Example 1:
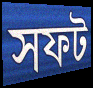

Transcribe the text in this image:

সফট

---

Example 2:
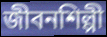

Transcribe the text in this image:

জীবনশিল্পী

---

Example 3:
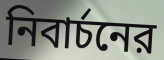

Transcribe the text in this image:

নিবার্চনের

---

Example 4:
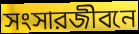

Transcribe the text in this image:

সংসারজীবনে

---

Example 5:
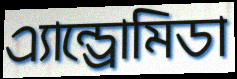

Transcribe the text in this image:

এ্যান্ড্রোমিডা